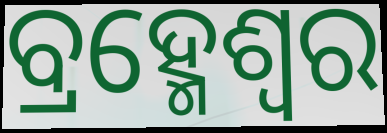
ବ୍ରହ୍ମେଶ୍ଵର